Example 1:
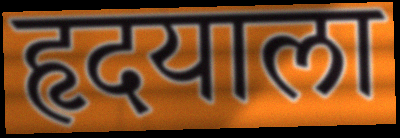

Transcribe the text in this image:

हृदयाला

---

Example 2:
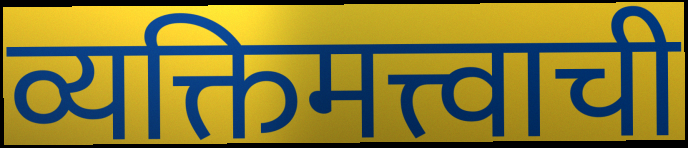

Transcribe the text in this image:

व्यक्तिमत्त्वाची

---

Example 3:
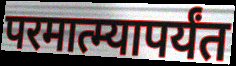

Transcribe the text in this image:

परमात्म्यापर्यंत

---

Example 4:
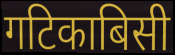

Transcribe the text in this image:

गटिकाबिसी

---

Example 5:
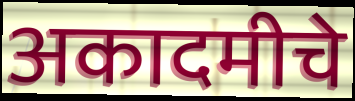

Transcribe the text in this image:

अकादमीचे